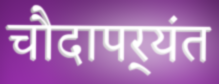
चौदापर्यंत